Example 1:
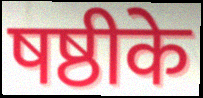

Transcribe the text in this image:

षष्ठीके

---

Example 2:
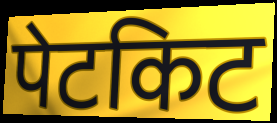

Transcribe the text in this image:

पेटकिट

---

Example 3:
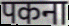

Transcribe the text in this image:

पकना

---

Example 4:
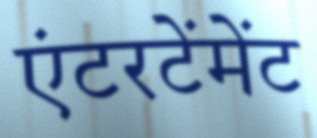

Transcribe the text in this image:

एंटरटेंमेंट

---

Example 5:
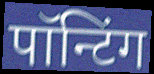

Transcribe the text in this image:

पॉन्टिंग